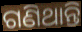
ଗଣିଥାନ୍ତି